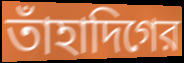
তাঁহাদিগের